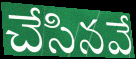
చేసినవే